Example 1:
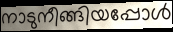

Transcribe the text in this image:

നാടുനീങ്ങിയപ്പോൾ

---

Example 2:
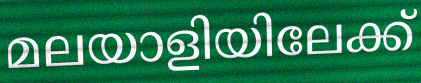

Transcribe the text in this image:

മലയാളിയിലേക്ക്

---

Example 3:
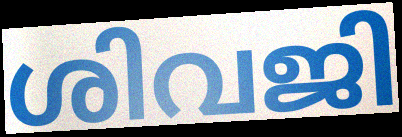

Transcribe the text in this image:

ശിവജി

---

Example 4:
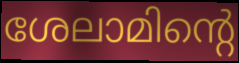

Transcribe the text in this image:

ശേലാമിന്റെ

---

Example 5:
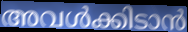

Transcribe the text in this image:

അവൾക്കിടാൻ